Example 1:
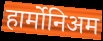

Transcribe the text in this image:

हार्मोनिअम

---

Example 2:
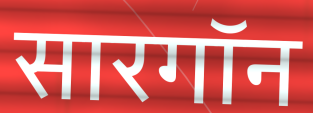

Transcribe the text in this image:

सारगॉन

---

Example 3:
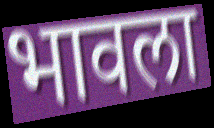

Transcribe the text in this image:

भावला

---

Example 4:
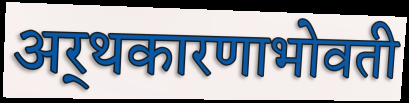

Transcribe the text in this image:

अर्थकारणाभोवती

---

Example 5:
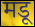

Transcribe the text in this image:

मडू